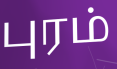
புரம்